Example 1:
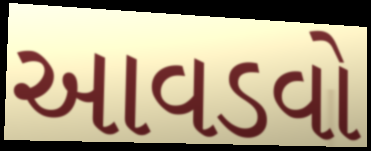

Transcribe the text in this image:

આવડવો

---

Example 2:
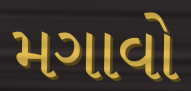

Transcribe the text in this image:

મગાવો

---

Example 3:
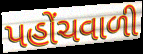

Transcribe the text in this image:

પહોંચવાળી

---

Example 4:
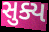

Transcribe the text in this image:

સુક્ય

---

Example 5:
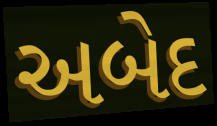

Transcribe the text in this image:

અબેદ